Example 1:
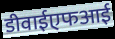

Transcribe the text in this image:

डीवाईएफआई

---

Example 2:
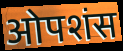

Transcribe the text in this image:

ओपशंस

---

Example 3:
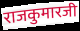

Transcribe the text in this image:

राजकुमारजी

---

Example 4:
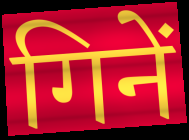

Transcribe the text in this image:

गिनें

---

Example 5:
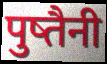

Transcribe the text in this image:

पुष्तैनी